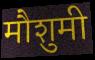
मौशुमी